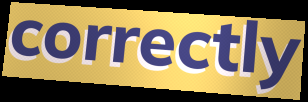
correctly